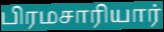
பிரமசாரியார்